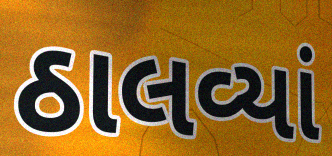
ઠાલવ્યાં